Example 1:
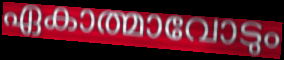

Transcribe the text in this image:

ഏകാത്മാവോടും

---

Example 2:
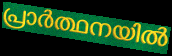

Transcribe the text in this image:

പ്രാർത്ഥനയിൽ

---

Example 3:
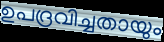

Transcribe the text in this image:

ഉപദ്രവിച്ചതായും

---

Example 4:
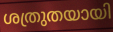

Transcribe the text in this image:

ശത്രുതയായി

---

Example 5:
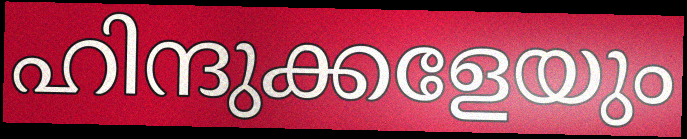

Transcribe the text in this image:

ഹിന്ദുക്കളേയും